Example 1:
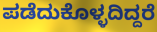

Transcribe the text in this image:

ಪಡೆದುಕೊಳ್ಳದಿದ್ದರೆ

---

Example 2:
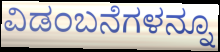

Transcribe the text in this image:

ವಿಡಂಬನೆಗಳನ್ನೂ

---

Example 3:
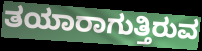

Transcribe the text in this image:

ತಯಾರಾಗುತ್ತಿರುವ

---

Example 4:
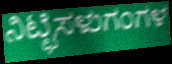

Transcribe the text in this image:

ನಿಟ್ಟೆಸಳುಗಂಗಳ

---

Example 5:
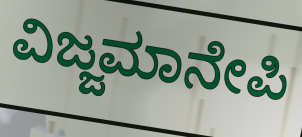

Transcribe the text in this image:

ವಿಜ್ಜಮಾನೇಪಿ